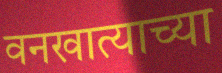
वनखात्याच्या